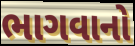
ભાગવાનો